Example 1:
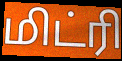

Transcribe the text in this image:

மிட்ரி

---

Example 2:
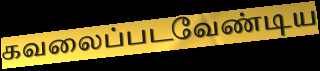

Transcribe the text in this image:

கவலைப்படவேண்டிய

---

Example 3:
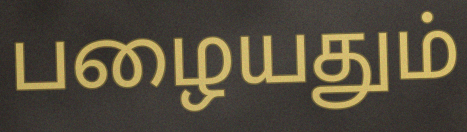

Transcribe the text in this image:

பழையதும்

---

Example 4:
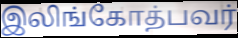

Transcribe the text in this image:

இலிங்கோத்பவர்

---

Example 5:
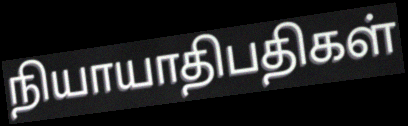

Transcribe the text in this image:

நியாயாதிபதிகள்